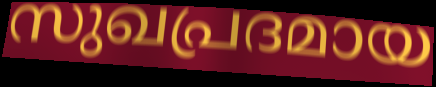
സുഖപ്രദമായ